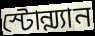
স্টোন্ম্যান